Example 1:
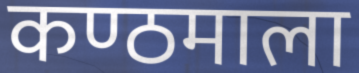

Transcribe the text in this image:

कण्ठमाला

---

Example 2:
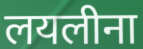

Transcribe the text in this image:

लयलीना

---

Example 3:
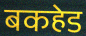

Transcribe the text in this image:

बकहेड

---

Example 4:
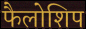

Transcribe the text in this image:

फैलोशिप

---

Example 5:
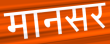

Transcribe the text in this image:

मानसर